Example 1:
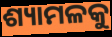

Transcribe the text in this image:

ଶ୍ୟାମଳକୁ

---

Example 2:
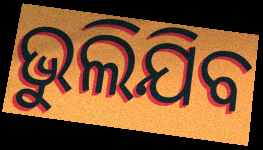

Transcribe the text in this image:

ଭୁଲିଯିବ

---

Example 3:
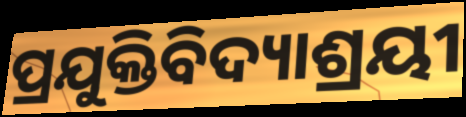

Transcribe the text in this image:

ପ୍ରଯୁକ୍ତିବିଦ୍ୟାଶ୍ରୟୀ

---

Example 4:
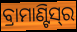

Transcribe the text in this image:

ବ୍ରାମାଣ୍ଟିସ୍‌ର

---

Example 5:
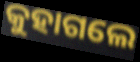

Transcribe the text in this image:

କୁହାଗଲେ